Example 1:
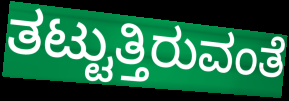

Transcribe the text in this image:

ತಟ್ಟುತ್ತಿರುವಂತೆ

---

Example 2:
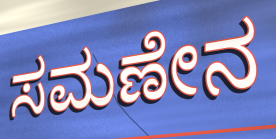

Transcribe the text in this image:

ಸಮಣೇನ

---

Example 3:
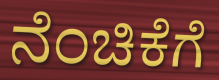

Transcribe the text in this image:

ನೆಂಚಿಕೆಗೆ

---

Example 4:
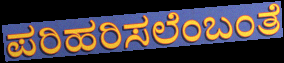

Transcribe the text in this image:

ಪರಿಹರಿಸಲೆಂಬಂತೆ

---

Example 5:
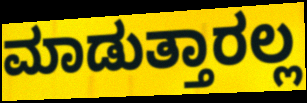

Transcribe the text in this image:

ಮಾಡುತ್ತಾರಲ್ಲ